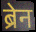
ब्रेन